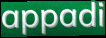
appadi